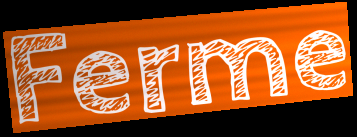
Ferme